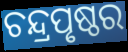
ଚନ୍ଦ୍ରପୃଷ୍ଠର